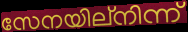
സേനയില്നിന്ന്